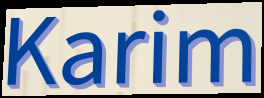
Karim